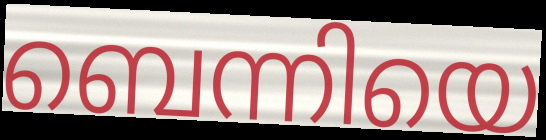
ബെന്നിയെ